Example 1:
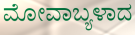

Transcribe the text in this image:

ಮೋವಾಬ್ಯಳಾದ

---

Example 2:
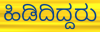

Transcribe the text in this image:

ಹಿಡಿದಿದ್ದರು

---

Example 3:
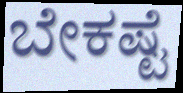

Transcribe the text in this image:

ಬೇಕಷ್ಟೆ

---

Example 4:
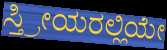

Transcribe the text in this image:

ಸ್ತ್ರೀಯರಲ್ಲಿಯೇ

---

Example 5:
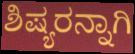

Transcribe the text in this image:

ಶಿಷ್ಯರನ್ನಾಗಿ